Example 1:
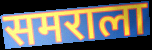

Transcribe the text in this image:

समराला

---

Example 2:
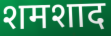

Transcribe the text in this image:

शमशाद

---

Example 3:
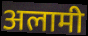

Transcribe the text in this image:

अलामी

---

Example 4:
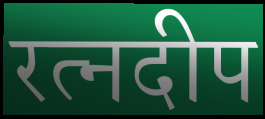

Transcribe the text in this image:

रत्नदीप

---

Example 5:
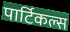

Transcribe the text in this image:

पार्टिकल्‍स